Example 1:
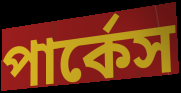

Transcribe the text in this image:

পার্কেস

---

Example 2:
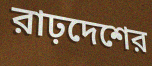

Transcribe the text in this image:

রাঢ়দেশের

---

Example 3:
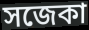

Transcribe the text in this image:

সজেকা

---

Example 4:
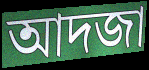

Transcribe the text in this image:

আদজা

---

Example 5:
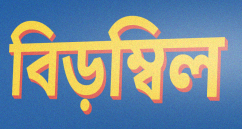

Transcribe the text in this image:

বিড়ম্বিল